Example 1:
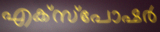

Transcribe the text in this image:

എക്സ്പോഷർ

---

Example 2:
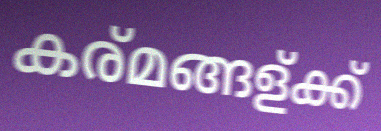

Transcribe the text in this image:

കര്മങ്ങള്ക്ക്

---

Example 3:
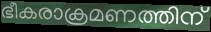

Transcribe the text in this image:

ഭീകരാക്രമണത്തിന്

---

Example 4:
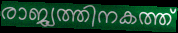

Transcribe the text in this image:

രാജ്യത്തിനകത്ത്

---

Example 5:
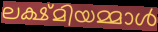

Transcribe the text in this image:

ലക്ഷ്മിയമ്മാൾ